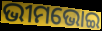
ଭୀମଭୋଇ